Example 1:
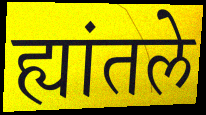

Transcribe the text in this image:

ह्यांतले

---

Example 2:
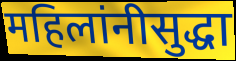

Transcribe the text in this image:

महिलांनीसुद्धा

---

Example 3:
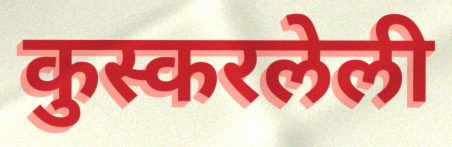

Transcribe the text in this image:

कुस्करलेली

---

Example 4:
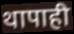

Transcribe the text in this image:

थापाही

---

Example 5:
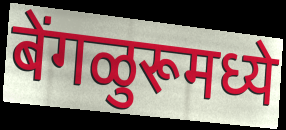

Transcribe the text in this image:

बेंगळुरूमध्ये